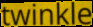
twinkle